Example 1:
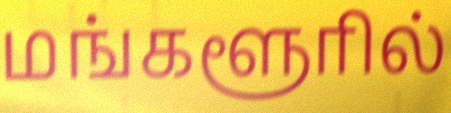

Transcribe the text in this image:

மங்களூரில்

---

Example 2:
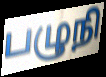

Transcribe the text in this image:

பழுநி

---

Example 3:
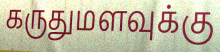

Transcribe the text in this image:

கருதுமளவுக்கு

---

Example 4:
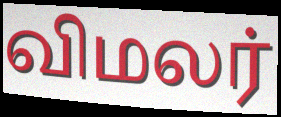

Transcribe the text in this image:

விமலர்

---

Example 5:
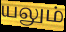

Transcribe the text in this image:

யலும்